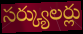
సర్క్యులర్లు